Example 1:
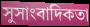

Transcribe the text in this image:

সুসাংবাদিকতা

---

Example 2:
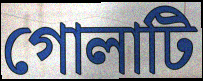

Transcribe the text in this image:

গোলাটি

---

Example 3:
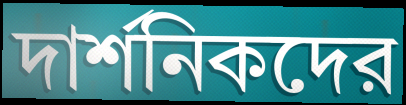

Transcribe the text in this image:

দার্শনিকদের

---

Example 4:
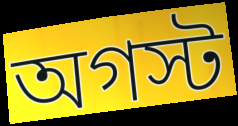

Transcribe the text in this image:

অগস্ট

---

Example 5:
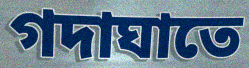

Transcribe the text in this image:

গদাঘাতে